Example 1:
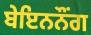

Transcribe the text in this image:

ਬੇਇਨਨੌੰਗ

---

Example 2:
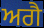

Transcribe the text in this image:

ਅਗੈ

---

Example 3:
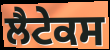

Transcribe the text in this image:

ਲੈਟੇਕਸ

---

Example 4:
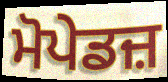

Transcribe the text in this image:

ਮੋਪੇਡਜ਼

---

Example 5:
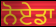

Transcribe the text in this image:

ਨੋਏਡਾ